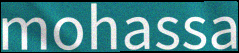
mohassa